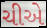
ચીએ